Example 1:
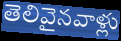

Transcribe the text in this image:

తెలివైనవాళ్లు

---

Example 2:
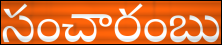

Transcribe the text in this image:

సంచారంబు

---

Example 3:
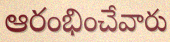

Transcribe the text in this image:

ఆరంభించేవారు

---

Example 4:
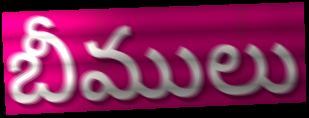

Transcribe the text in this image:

బీములు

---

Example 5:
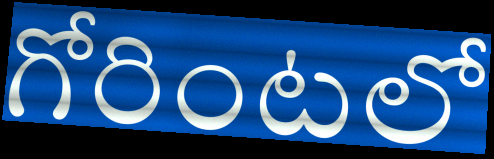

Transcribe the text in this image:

గోరింటలో